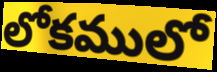
లోకములో